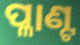
ପ୍ଳାଣ୍ଟ